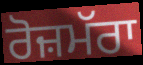
ਰੋਜ਼ਮੱਰਾ